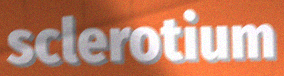
sclerotium